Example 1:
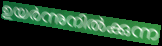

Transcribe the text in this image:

ഉയർന്നുനിൽക്കുന്ന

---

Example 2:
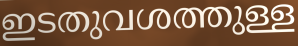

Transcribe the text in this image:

ഇടതുവശത്തുള്ള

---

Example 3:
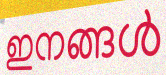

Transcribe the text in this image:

ഇനങ്ങൾ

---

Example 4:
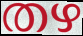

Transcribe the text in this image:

തഴ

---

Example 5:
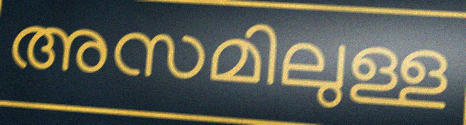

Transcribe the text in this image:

അസമിലുള്ള